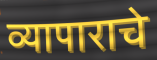
व्यापाराचे